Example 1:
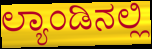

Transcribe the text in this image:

ಲ್ಯಾಂಡಿನಲ್ಲಿ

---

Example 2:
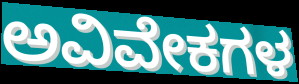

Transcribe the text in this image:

ಅವಿವೇಕಗಳ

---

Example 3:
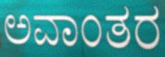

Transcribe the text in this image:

ಅವಾಂತರ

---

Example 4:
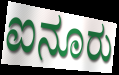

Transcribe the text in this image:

ಐನೂರು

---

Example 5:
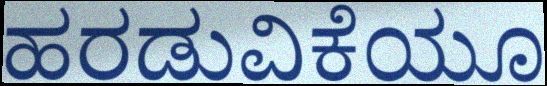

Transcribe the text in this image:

ಹರಡುವಿಕೆಯೂ